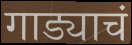
गाड्याचं